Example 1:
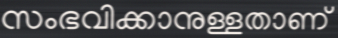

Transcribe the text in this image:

സംഭവിക്കാനുള്ളതാണ്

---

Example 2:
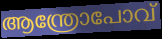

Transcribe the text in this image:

ആന്ത്രോപോവ്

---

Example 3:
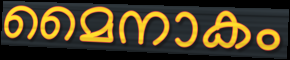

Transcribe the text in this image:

മൈനാകം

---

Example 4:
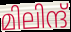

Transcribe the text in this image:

മിലിന്ദ്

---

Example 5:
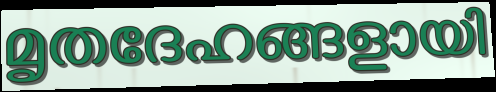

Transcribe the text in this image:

മൃതദേഹങ്ങളായി